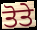
ਤੋਤੇ